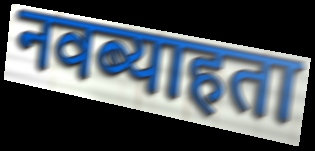
नवब्याहता